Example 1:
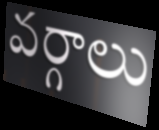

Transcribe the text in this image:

వర్గాలు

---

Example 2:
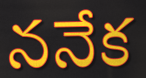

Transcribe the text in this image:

ననేక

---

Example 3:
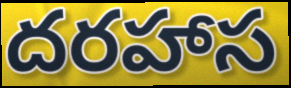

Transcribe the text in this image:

దరహాస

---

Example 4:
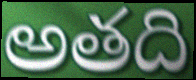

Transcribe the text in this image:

అతది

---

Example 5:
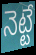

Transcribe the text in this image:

నెట్టే